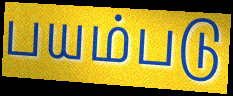
பயம்படு